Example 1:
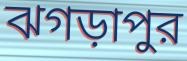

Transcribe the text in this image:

ঝগড়াপুর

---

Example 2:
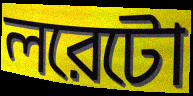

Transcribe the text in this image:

লরেটো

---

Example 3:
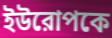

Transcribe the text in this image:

ইউরোপকে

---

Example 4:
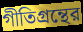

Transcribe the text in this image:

গীতিগ্রন্থের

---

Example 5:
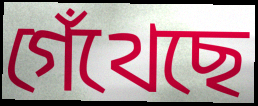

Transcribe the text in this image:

গেঁথেছে